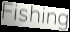
Fishing